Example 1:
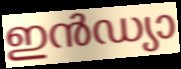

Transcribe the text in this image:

ഇൻഡ്യാ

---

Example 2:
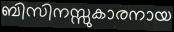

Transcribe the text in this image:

ബിസിനസ്സുകാരനായ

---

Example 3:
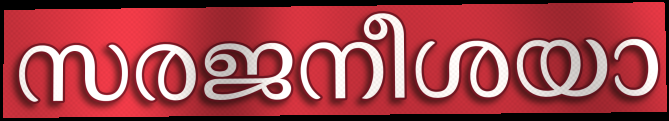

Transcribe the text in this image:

സരജനീശയാ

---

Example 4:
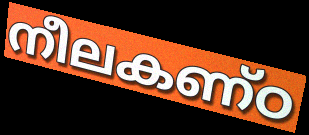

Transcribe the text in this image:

നീലകണ്ഠ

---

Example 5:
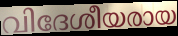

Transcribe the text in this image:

വിദേശീയരായ